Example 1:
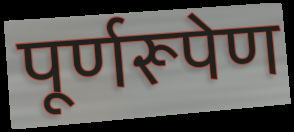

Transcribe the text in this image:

पूर्णरूपेण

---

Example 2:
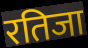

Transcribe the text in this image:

रतिजा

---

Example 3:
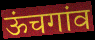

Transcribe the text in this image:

ऊंचगांव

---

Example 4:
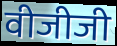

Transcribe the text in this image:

वीजीजी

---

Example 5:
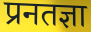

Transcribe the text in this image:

प्रनतज्ञा